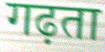
गढ़ता